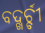
ବଦ୍ଖର୍ଚ୍ଚୀ